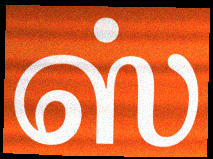
ஸ்